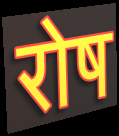
रोष